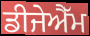
ਡੀਜੇਐੱਮ